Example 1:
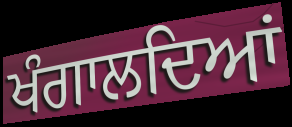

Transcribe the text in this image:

ਖੰਗਾਲਦਿਆਂ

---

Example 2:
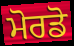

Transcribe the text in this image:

ਮੋਰਡੋ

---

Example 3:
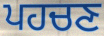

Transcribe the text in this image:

ਪਹਚਣ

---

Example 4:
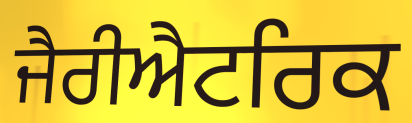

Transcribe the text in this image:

ਜੈਰੀਐਟਰਿਕ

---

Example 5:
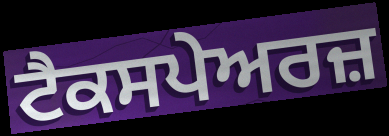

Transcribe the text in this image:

ਟੈਕਸਪੇਅਰਜ਼